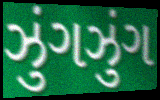
ઝુંગઝુંગ